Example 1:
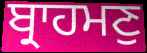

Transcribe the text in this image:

ਬ੍ਰਾਹਮਣੁ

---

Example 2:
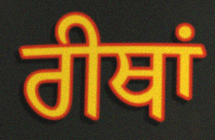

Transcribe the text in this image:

ਰੀਥਾਂ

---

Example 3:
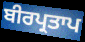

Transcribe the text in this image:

ਬੀਰਪ੍ਰਤਾਪ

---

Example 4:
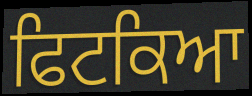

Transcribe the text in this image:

ਫਿਟਕਿਆ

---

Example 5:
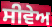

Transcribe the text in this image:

ਸੀਵੇਅ